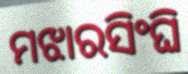
ମଝାରସିଂଘି